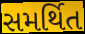
સમર્થિત